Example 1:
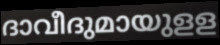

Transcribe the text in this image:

ദാവീദുമായുളള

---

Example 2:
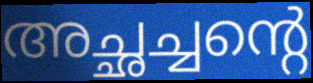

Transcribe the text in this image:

അച്ഛച്ചന്റെ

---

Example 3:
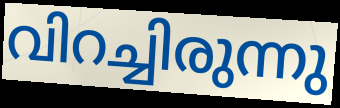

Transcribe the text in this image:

വിറച്ചിരുന്നു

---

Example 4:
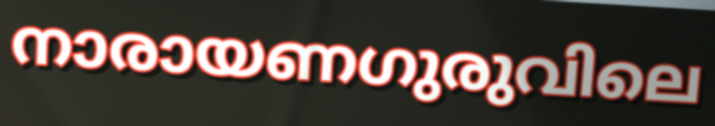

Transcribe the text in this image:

നാരായണഗുരുവിലെ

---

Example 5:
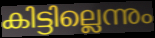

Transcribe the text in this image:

കിട്ടില്ലെന്നും